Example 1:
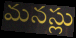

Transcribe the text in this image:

మనస్లు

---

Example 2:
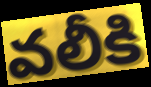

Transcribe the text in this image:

వలీకి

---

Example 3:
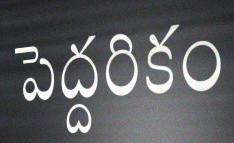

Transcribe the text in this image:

పెద్దరికం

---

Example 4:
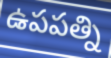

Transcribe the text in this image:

ఉపపత్ని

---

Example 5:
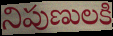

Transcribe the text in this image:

నిపుణులకి